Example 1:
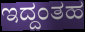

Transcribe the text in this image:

ಇದ್ದಂತಹ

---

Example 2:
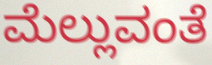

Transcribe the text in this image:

ಮೆಲ್ಲುವಂತೆ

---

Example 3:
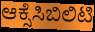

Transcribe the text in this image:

ಆಕ್ಸೆಸಿಬಿಲಿಟಿ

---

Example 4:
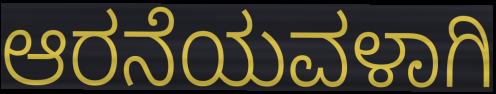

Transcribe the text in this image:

ಆರನೆಯವಳಾಗಿ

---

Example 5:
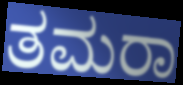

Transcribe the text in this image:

ತಮರಾ